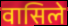
वासिले